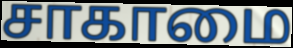
சாகாமை